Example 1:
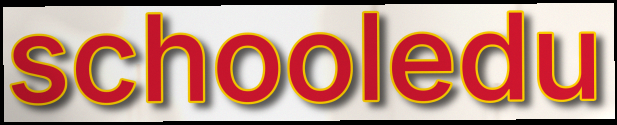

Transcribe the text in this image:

schooledu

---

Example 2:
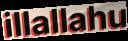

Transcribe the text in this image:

illallahu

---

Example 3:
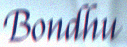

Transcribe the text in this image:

Bondhu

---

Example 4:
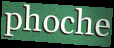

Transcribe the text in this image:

phoche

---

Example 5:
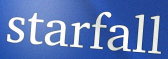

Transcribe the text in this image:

starfall